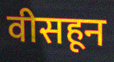
वीसहून